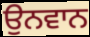
ਉਨਵਾਨ